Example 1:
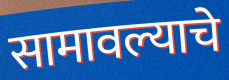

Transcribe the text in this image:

सामावल्याचे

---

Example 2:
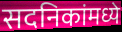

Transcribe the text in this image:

सदनिकांमध्ये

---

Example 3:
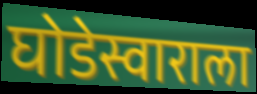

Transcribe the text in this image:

घोडेस्वाराला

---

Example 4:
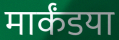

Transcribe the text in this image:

मार्कंडया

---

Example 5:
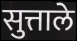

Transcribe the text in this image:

सुत्ताले